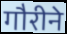
गौरीने